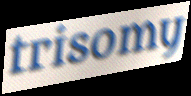
trisomy